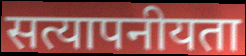
सत्यापनीयता